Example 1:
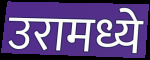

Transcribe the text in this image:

उरामध्ये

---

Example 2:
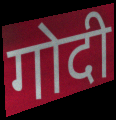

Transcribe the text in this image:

गोदी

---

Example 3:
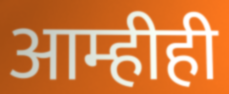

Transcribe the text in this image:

आम्हीही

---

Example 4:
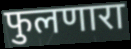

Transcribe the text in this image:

फुलणारा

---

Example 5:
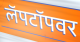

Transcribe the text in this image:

लॅपटॉपवर